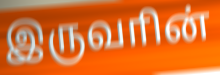
இருவரின்